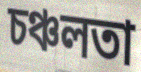
চঞ্চলতা